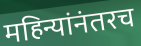
महिन्यांनंतरच